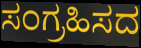
ಸಂಗ್ರಹಿಸದ